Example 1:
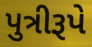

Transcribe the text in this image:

પુત્રીરૂપે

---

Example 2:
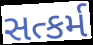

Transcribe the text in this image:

સત્કર્મ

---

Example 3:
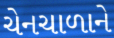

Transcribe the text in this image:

ચેનચાળાને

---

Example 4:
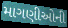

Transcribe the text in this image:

માગણીઓની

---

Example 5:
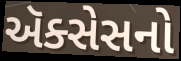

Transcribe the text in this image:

ઍક્સેસનો